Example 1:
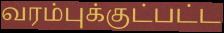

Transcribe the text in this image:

வரம்புக்குட்பட்ட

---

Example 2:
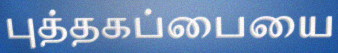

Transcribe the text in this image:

புத்தகப்பையை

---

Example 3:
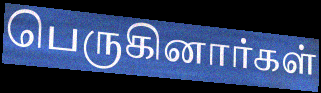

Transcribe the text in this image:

பெருகினார்கள்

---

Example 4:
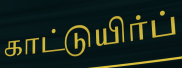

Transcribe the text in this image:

காட்டுயிர்ப்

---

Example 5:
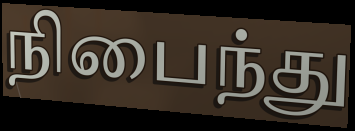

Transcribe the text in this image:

நிபைந்து